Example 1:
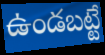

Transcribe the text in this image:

ఉండబట్టే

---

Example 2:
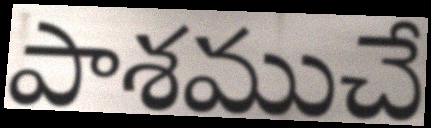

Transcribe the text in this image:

పాశముచే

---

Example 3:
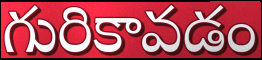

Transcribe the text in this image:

గురికావడం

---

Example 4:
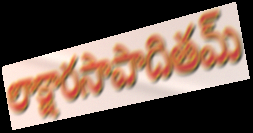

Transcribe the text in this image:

లాక్షారసాపాదితమ్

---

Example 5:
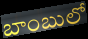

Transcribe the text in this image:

బాంబులో